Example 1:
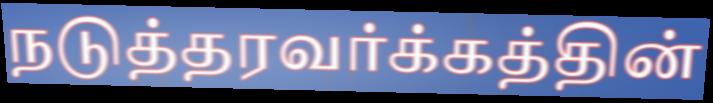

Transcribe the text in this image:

நடுத்தரவர்க்கத்தின்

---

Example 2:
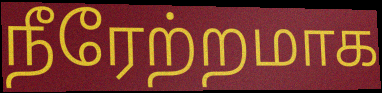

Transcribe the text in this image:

நீரேற்றமாக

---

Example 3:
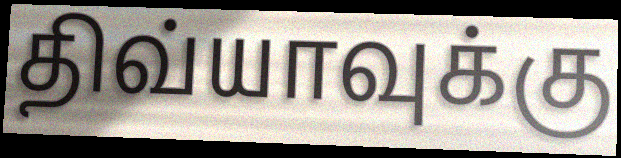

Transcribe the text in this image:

திவ்யாவுக்கு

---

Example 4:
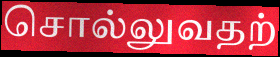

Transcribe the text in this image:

சொல்லுவதற்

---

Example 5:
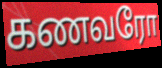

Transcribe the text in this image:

கணவரோ